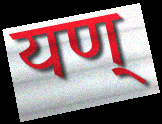
यण्